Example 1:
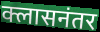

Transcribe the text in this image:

क्लासनंतर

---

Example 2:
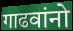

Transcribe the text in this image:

गाढवांनो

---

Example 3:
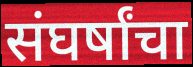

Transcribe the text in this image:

संघर्षांचा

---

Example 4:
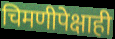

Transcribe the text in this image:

चिमणीपेक्षाही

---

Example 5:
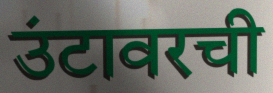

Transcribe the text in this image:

उंटावरची